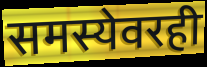
समस्येवरही